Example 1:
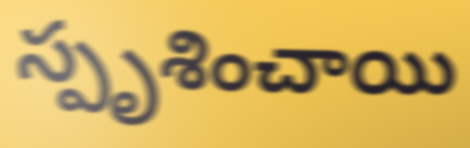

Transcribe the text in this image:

స్పృశించాయి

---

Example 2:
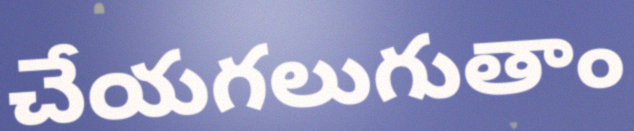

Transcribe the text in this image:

చేయగలుగుతాం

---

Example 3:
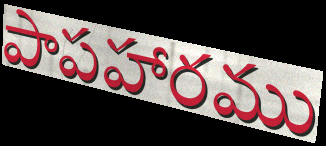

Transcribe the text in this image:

పాపహారము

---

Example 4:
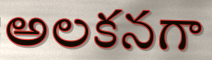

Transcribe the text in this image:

అలకనగా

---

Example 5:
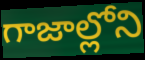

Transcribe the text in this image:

గాజాల్లోని